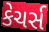
કેચર્સ